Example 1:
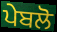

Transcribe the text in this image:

ਪੇਬਲੋ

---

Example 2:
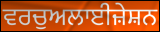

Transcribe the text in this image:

ਵਰਚੁਅਲਾਈਜ਼ੇਸ਼ਨ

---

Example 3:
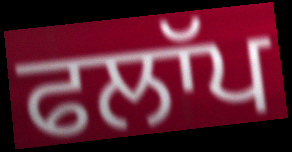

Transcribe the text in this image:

ਫਲਾੱਪ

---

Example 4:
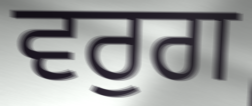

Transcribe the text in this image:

ਵਰੁਗ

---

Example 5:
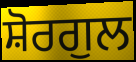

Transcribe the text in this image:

ਸ਼ੋਰਗੁਲ